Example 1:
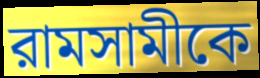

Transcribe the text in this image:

রামসামীকে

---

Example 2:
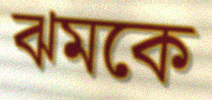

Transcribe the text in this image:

ঝমকে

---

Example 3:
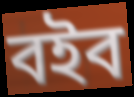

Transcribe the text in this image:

বইব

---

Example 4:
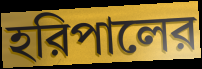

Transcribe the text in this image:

হরিপালের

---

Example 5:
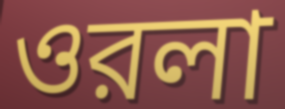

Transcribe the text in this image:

ওরলা